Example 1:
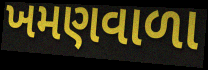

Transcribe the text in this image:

ખમણવાળા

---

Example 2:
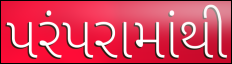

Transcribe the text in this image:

પરંપરામાંથી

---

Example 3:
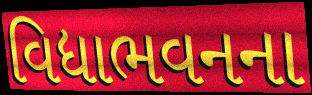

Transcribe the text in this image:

વિદ્યાભવનના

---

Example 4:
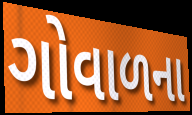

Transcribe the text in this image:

ગોવાળના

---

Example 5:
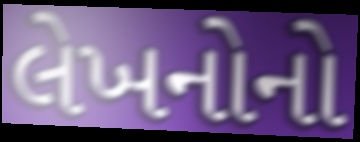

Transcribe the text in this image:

લેખનોનો